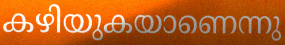
കഴിയുകയാണെന്നു